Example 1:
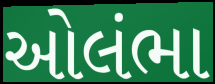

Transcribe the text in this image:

ઓલંભા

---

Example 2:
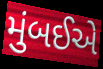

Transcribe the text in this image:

મુંબઈએ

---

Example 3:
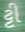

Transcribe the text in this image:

ટ્ટી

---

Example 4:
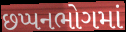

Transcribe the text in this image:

છપ્પનભોગમાં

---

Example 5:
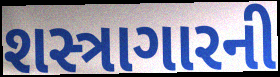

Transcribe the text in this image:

શસ્ત્રાગારની